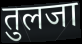
तुलजा